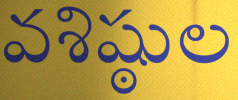
వశిష్ఠుల